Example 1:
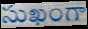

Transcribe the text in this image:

సుఖంగా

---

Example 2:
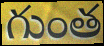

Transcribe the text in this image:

గుంత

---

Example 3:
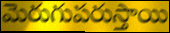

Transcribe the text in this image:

మెరుగుపరుస్తాయి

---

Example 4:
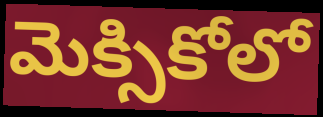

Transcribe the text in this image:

మెక్సికోలో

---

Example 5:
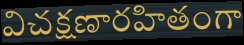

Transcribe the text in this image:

విచక్షణారహితంగా